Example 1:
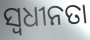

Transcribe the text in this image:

ସ୍ୱଧୀନତା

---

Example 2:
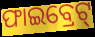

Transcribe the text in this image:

ଫାଇବ୍ରେଟ୍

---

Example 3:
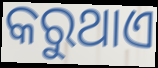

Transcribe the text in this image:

କରୁଥାଏ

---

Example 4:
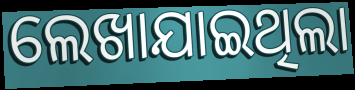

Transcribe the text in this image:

ଲେଖାଯାଇଥିଲା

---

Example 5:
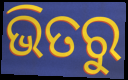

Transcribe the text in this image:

ଭିତରୁ